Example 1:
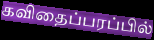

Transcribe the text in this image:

கவிதைப்பரப்பில்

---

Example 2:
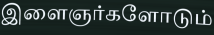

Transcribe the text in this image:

இளைஞர்களோடும்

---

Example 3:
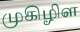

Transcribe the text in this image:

முகிழிள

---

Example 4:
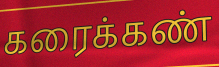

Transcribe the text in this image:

கரைக்கண்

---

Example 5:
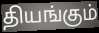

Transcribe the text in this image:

தியங்கும்